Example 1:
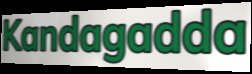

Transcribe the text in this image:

Kandagadda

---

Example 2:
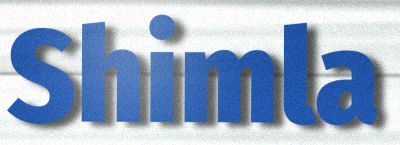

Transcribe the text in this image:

Shimla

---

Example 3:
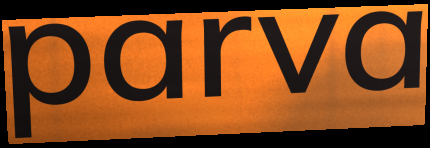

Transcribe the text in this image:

parva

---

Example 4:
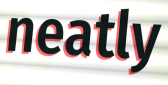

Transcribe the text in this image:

neatly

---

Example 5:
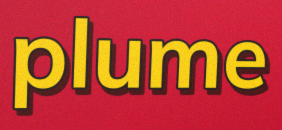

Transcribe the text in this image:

plume